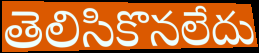
తెలిసికొనలేదు